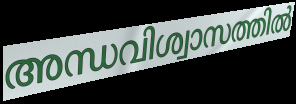
അന്ധവിശ്വാസത്തിൽ